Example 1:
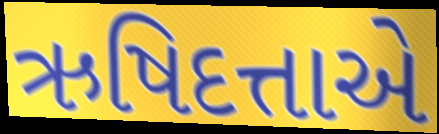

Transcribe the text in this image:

ઋષિદત્તાએ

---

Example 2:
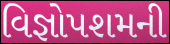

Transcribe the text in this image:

વિજ્ઞોપશમની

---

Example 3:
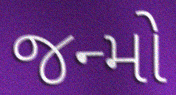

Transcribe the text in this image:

જન્મો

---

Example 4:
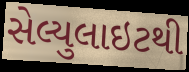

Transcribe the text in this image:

સેલ્યુલાઇટથી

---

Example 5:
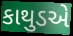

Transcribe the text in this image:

કાથુડએ